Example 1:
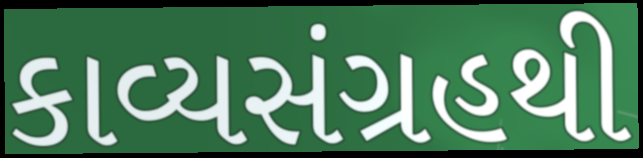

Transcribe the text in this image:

કાવ્યસંગ્રહથી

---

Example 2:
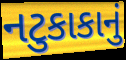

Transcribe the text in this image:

નટુકાકાનું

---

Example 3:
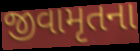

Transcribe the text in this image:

જીવામૃતના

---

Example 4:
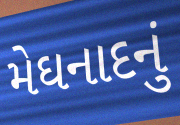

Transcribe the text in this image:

મેઘનાદનું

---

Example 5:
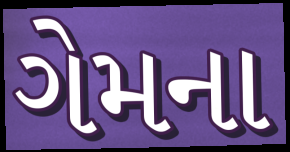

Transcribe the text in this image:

ગેમના